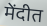
मेंदीत